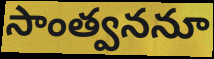
సాంత్వననూ